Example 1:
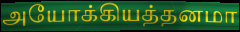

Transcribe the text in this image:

அயோக்கியத்தனமா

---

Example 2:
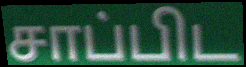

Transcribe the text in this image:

சாப்பிட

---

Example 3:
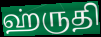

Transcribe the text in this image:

ஹ்ருதி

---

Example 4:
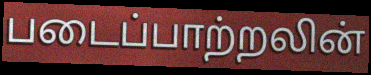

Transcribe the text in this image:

படைப்பாற்றலின்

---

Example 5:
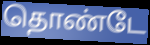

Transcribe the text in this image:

தொண்டே